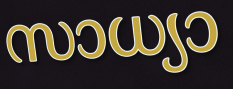
സാധ്യാ